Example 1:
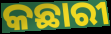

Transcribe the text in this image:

କଛାରୀ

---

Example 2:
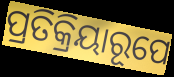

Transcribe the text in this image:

ପ୍ରତିକ୍ରିୟାରୂପେ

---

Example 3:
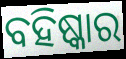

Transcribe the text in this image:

ବହିଷ୍କାର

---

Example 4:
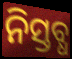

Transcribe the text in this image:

ନିସ୍ତବ୍ଧ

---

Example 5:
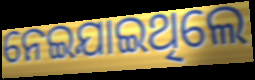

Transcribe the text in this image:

ନେଇଯାଇଥିଲେ